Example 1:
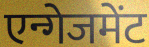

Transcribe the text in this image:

एन्गेजमेंट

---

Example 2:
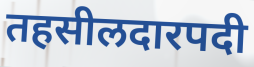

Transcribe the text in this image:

तहसीलदारपदी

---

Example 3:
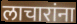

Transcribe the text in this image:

लाचारांना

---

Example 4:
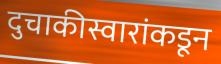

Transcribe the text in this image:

दुचाकीस्वारांकडून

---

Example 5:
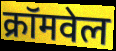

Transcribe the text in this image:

क्रॉमवेल